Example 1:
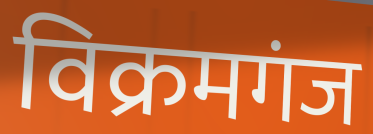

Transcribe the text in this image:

विक्रमगंज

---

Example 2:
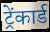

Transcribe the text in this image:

ट्रेंकार्ड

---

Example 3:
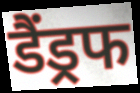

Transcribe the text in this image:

डैंड्रफ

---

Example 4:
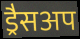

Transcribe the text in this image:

ड्रैसअप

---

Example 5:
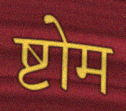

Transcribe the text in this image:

ष्टोम